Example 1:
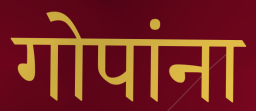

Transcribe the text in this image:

गोपांना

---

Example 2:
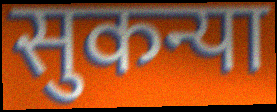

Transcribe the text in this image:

सुकन्या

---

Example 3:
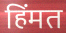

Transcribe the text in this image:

हिंमत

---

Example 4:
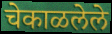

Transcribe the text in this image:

चेकाळलेले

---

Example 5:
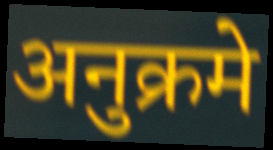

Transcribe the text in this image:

अनुक्रमे